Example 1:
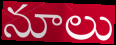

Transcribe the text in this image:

నూలు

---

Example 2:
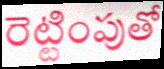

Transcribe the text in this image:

రెట్టింపుతో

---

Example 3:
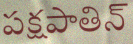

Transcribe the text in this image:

పక్షపాతిన్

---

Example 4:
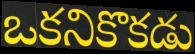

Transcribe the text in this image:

ఒకనికొకడు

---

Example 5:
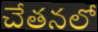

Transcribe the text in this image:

చేతనలో